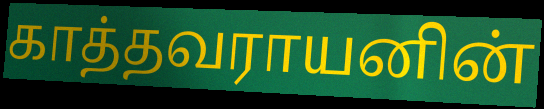
காத்தவராயனின்